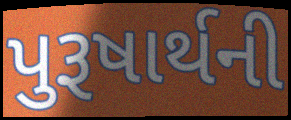
પુરૂષાર્થની